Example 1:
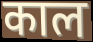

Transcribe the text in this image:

काल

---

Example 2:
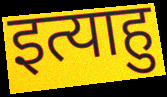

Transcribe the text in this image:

इत्याहु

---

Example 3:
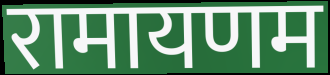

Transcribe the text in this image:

रामायणम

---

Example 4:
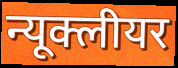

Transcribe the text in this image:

न्यूक्लीयर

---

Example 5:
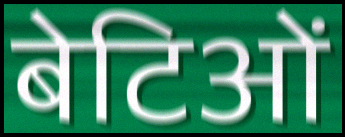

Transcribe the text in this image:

बेटिओं